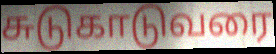
சுடுகாடுவரை